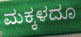
ಮಕ್ಕಳದೂ